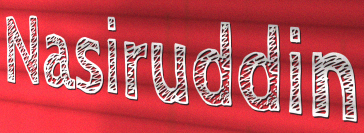
Nasiruddin